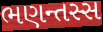
ભણન્તસ્સ